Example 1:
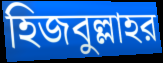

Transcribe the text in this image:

হিজবুল্লাহর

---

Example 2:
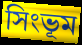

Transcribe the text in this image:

সিংভূম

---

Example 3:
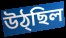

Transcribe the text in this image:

উঠ্ছিল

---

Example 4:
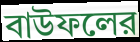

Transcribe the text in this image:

বাউফলের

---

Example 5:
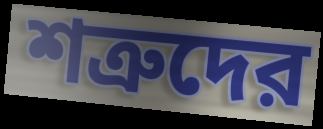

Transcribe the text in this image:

শত্রুদের